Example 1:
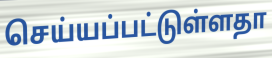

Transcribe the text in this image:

செய்யப்பட்டுள்ளதா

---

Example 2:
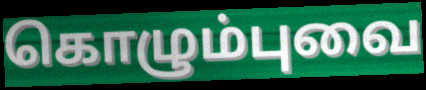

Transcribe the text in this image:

கொழும்புவை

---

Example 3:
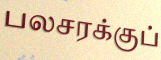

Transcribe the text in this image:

பலசரக்குப்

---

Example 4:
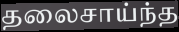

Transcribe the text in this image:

தலைசாய்ந்த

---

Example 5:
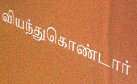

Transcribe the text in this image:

வியந்துகொண்டார்